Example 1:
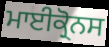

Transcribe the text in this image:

ਮਾਈਕ੍ਰੋਨਸ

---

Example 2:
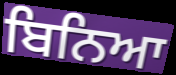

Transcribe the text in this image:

ਬਿਨਿਆ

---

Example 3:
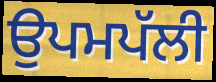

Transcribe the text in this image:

ਉਪਮਪੱਲੀ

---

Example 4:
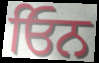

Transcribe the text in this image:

ਓਿਨ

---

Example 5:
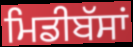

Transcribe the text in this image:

ਮਿਡੀਬੱਸਾਂ